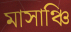
মাসাঞ্চি